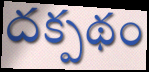
దక్పథం